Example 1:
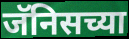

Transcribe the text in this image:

जॅनिसच्या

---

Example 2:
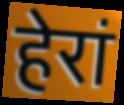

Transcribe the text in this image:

हेरां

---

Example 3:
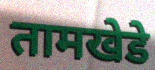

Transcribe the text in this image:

तामखेडे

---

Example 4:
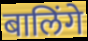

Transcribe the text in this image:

बालिंगे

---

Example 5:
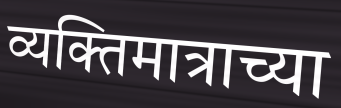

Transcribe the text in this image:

व्यक्तिमात्राच्या